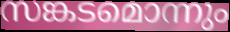
സങ്കടമൊന്നും